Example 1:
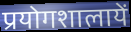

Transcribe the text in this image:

प्रयोगशालायें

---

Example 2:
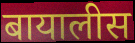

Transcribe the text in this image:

बायालीस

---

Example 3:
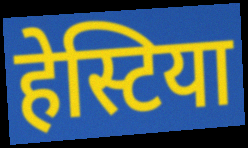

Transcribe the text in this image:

हेस्टिया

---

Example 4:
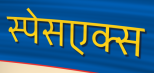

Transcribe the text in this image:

स्पेसएक्स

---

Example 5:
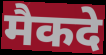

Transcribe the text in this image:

मैकदे